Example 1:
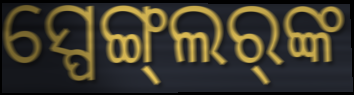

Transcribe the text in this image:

ସ୍ପେଙ୍ଗ୍‌ଲର୍‌ଙ୍କ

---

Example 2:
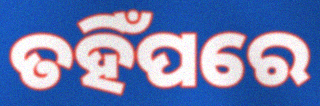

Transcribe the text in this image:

ତହିଁପରେ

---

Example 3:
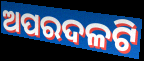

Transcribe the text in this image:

ଅପରଦଳଟି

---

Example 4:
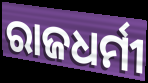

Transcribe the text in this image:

ରାଜଧର୍ମୀ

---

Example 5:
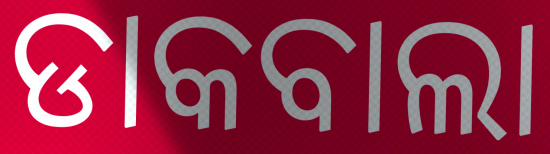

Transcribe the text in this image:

ଡାକବାଲା